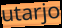
utarjo